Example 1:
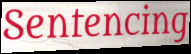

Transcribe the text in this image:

Sentencing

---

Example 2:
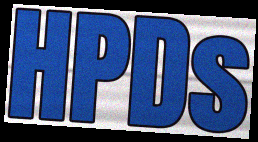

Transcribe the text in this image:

HPDs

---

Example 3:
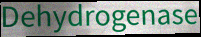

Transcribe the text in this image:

Dehydrogenase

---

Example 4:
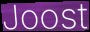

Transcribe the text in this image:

Joost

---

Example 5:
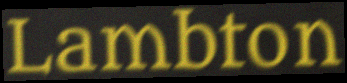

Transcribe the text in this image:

Lambton